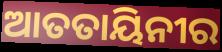
ଆତତାୟିନୀର